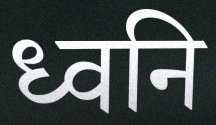
ध्वनि